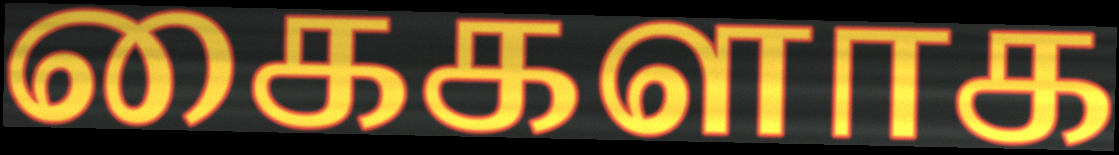
கைகளாக